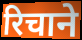
रिचाने